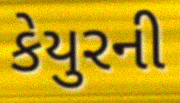
કેયુરની